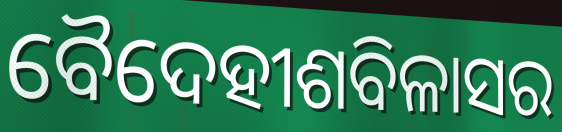
ବୈଦେହୀଶବିଳାସର